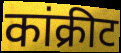
कांक्रीट